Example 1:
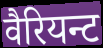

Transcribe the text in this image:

वैरियन्ट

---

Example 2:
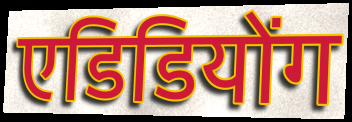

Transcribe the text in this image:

एडिडियोंग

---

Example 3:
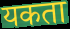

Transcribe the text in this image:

यकता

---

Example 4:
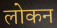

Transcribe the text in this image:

लोकन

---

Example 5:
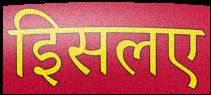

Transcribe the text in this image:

इिसलए